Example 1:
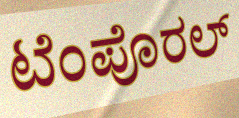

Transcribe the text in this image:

ಟೆಂಪೊರಲ್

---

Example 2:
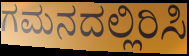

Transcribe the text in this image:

ಗಮನದಲ್ಲಿರಿಸಿ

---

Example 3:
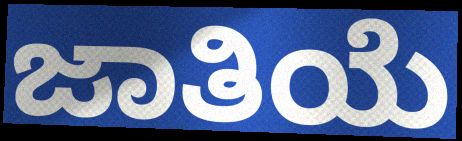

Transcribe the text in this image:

ಜಾತಿಯೆ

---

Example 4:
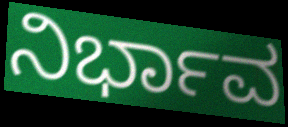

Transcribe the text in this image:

ನಿರ್ಭಾವ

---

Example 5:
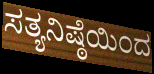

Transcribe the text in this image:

ಸತ್ಯನಿಷ್ಠೆಯಿಂದ